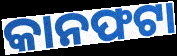
କାନଫଟା